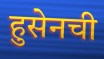
हुसेनची